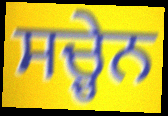
ਸਚ੍ਚੇਨ